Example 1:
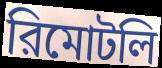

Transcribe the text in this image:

রিমোটলি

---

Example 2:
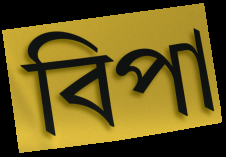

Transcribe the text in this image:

বিপা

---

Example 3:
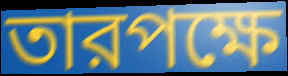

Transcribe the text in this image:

তারপক্ষে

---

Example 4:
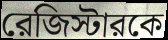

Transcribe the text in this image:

রেজিস্টারকে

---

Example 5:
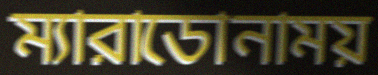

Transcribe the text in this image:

ম্যারাডোনাময়